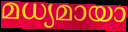
മധ്യമായാ